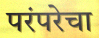
परंपरेचा